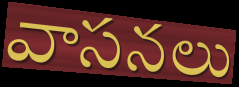
వాసనలు